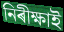
নিৰীক্ষাই